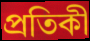
প্ৰতিকী